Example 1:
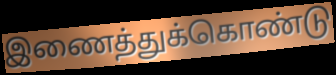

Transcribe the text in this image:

இணைத்துக்கொண்டு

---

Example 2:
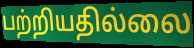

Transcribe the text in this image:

பற்றியதில்லை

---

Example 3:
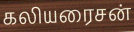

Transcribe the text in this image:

கலியரைசன்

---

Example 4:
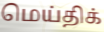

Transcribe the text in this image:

மெய்திக்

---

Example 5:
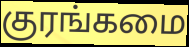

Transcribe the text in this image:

குரங்கமை